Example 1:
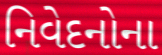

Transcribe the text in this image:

નિવેદનોના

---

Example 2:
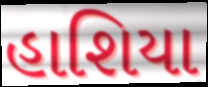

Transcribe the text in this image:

હાશિયા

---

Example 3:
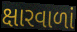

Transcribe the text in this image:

ક્ષારવાળાં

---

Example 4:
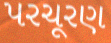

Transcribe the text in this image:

પરચૂરણ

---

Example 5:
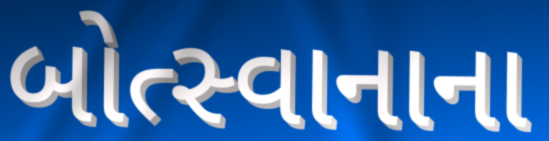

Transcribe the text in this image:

બોત્સ્વાનાના